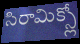
సిరామిక్స్లో